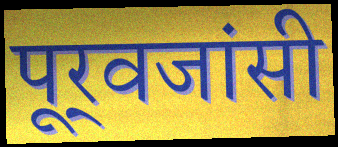
पूर्वजांसी